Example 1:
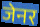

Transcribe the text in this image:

जेनर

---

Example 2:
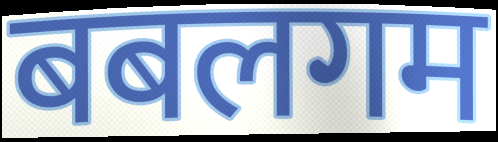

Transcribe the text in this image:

बबलगम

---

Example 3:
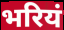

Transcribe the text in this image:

भरियं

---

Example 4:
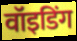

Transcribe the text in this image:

वॉइडिंग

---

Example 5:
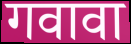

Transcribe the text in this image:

गवावा